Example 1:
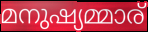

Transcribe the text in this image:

മനുഷ്യമ്മാര്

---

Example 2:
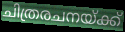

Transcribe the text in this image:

ചിത്രരചനയ്ക്ക്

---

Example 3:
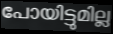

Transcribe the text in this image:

പോയിട്ടുമില്ല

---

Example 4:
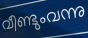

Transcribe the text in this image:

വീണ്ടുംവന്നു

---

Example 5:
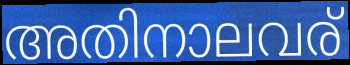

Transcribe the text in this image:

അതിനാലവര്